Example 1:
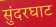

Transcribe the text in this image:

सुंदरघाट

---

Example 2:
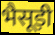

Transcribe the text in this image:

भैसूड़ी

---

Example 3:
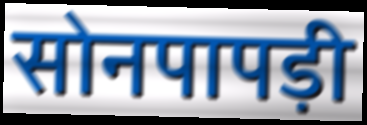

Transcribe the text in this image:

सोनपापड़ी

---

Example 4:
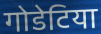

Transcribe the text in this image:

गोडेटिया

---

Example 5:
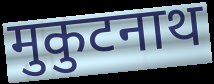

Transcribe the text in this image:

मुकुटनाथ